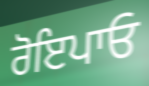
ਰੋਇਪਾਓ